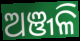
ଅଞ୍ଜଳି